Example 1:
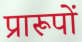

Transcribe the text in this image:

प्रारूपों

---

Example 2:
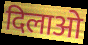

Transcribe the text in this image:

दिलाओ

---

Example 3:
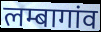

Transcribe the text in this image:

लम्बागांव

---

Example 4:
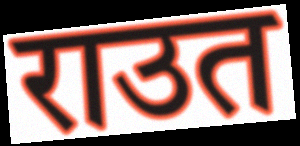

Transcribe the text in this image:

राउत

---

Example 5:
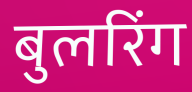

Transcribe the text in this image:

बुलरिंग